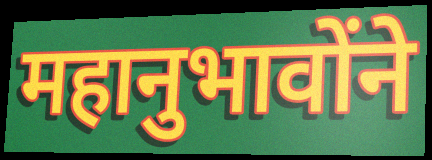
महानुभावोंने